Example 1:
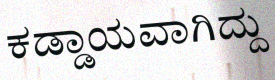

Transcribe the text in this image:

ಕಡ್ಡಾಯವಾಗಿದ್ದು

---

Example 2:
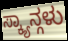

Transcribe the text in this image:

ಸ್ಕ್ಯಾನ್ಗಳು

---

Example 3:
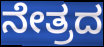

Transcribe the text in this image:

ನೇತ್ರದ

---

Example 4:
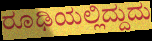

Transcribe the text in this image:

ರೂಢಿಯಲ್ಲಿದ್ದುದು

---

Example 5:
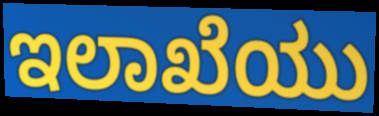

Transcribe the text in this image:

ಇಲಾಖೆಯು